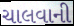
ચાલવાની